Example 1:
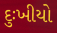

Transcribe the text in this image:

દુઃખીયો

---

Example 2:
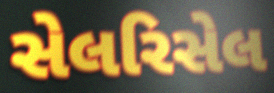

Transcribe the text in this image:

સેલરિસેલ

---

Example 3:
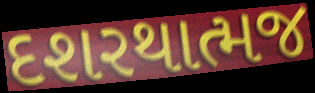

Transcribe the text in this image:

દશરથાત્મજ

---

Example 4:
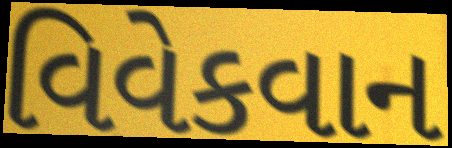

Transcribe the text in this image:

વિવેકવાન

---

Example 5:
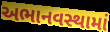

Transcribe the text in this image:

અભાનવસ્થામાં